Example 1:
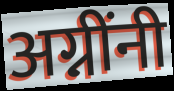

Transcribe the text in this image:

अग्नींनी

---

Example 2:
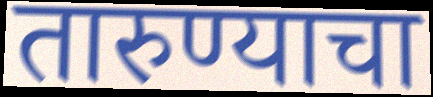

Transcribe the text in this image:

तारुण्याचा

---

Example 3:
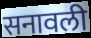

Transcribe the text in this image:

सनावली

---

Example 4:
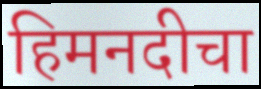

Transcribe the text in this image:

हिमनदीचा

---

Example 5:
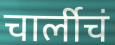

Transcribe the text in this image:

चार्लीचं